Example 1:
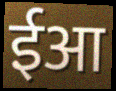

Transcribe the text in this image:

ईआ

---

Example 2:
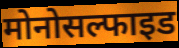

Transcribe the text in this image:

मोनोसल्फाइड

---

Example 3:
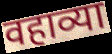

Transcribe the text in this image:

वहाव्या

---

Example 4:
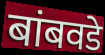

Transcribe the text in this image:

बांबवडे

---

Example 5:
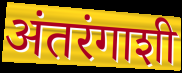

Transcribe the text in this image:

अंतरंगाशी